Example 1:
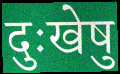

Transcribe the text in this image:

दुःखेषु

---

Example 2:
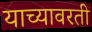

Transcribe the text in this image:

याच्यावरती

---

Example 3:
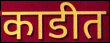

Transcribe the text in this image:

काडीत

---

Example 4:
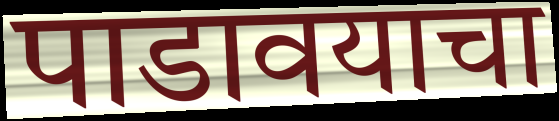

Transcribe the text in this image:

पाडावयाचा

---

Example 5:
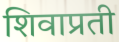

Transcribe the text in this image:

शिवाप्रती